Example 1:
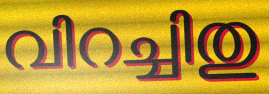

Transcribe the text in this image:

വിറച്ചിതു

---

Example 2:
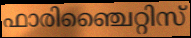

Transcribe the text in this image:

ഫാരിഞ്ചൈറ്റിസ്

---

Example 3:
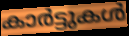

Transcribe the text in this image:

കാർട്ടുകൾ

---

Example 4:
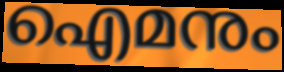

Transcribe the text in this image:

ഐമനും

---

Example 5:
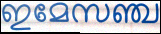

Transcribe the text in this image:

ഇമേസഞ്ച